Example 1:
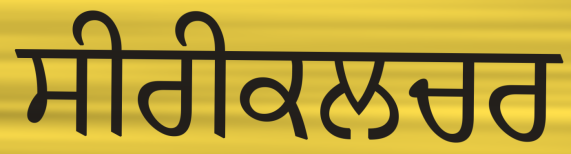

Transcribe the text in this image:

ਸੀਰੀਕਲਚਰ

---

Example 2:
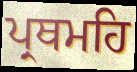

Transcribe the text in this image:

ਪ੍ਰਥਮਹਿ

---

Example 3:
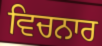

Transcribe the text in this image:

ਵਿਚਨਾਰ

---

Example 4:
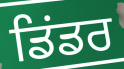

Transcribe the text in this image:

ਡਿਂਡਰ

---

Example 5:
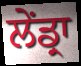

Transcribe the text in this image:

ਲੇਂਡ੍ਰਾ